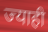
ज्याही